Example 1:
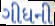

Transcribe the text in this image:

ગીધની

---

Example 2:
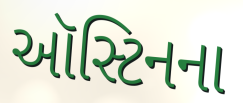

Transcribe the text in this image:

ઑસ્ટિનના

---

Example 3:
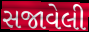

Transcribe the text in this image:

સજાવેલી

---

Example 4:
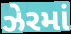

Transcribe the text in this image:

ઝેરમાં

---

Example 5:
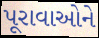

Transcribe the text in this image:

પૂરાવાઓને